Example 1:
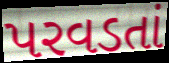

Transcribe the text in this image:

પરવડતાં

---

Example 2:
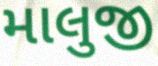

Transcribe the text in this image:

માલુજી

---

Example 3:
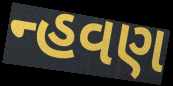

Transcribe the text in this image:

ન્હવણ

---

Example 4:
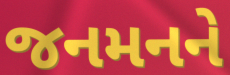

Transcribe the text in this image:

જનમનને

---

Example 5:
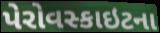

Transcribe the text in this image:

પેરોવસ્કાઇટના